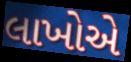
લાખોએ